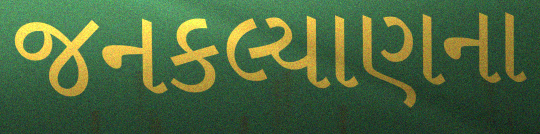
જનકલ્યાણના